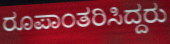
ರೂಪಾಂತರಿಸಿದ್ದರು